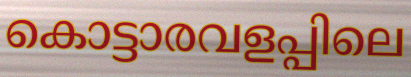
കൊട്ടാരവളപ്പിലെ